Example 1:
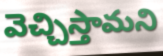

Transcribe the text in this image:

వెచ్చిస్తామని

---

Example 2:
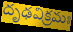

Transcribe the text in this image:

దృఢవిక్రమః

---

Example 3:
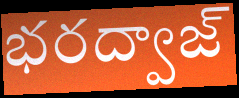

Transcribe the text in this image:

భరద్వాజ్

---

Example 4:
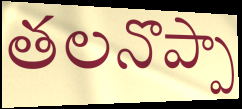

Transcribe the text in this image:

తలనొప్పా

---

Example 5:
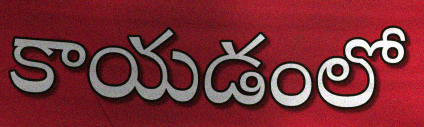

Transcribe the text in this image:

కాయడంలో